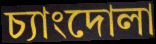
চ্যাংদোলা